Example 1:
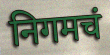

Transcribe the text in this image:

निगमचं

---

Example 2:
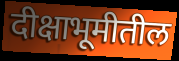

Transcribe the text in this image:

दीक्षाभूमीतील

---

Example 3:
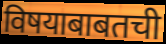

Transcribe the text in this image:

विषयाबाबतची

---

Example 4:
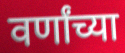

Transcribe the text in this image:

वर्णांच्या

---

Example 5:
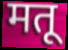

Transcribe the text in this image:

मतू